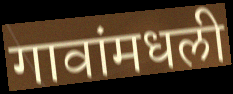
गावांमधली